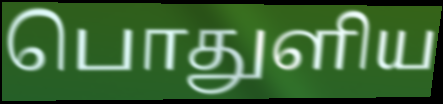
பொதுளிய